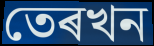
তেৰখন